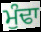
ਮੁੰਢਾ